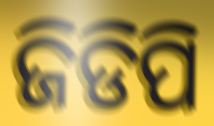
ଜିଡିପି